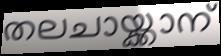
തലചായ്ക്കാന്